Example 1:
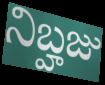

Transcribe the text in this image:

నిబ్హజు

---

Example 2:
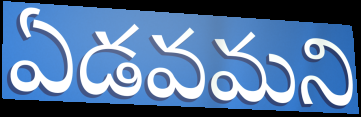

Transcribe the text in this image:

ఏడవమని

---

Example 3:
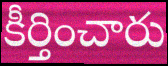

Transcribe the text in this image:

కీర్తించారు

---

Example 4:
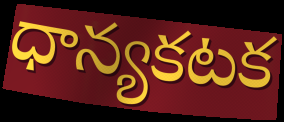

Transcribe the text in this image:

ధాన్యకటక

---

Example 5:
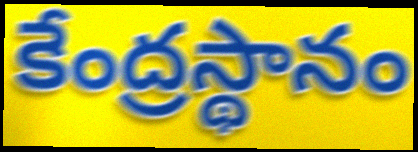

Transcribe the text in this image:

కేంద్రస్థానం